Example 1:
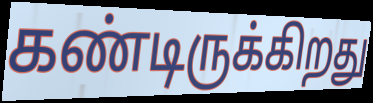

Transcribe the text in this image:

கண்டிருக்கிறது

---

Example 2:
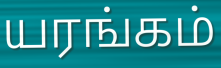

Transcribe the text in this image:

யரங்கம்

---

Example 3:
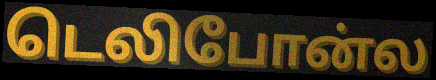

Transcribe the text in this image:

டெலிபோன்ல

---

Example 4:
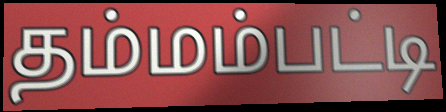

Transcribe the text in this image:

தம்மம்பட்டி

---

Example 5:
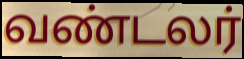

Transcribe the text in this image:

வண்டலர்